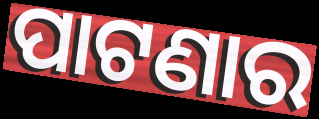
ପାଟଣାର